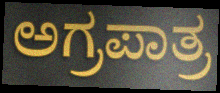
ಅಗ್ರಪಾತ್ರ